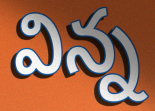
విన్న